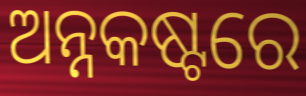
ଅନ୍ନକଷ୍ଟରେ